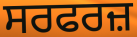
ਸਰਫਰਜ਼